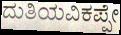
ದುತಿಯವಿಕಪ್ಪೇ